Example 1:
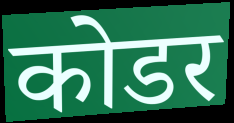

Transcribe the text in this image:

कोडर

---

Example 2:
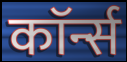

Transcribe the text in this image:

कॉर्न्स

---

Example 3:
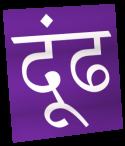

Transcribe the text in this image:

दूंढ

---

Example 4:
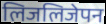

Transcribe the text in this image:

लिजलिजेपन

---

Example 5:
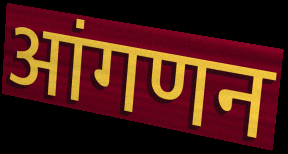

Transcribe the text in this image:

आंगणन